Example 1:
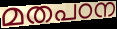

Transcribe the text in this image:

മതപഠന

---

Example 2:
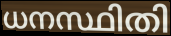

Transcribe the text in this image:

ധനസ്ഥിതി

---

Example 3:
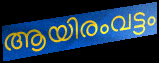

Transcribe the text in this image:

ആയിരംവട്ടം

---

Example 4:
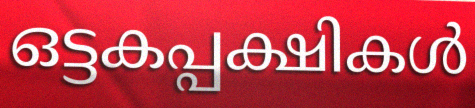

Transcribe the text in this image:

ഒട്ടകപ്പക്ഷികൾ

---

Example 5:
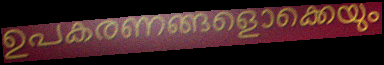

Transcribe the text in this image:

ഉപകരണങ്ങളൊക്കെയും